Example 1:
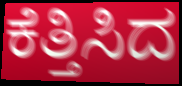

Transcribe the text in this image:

ಕೆತ್ತಿಸಿದ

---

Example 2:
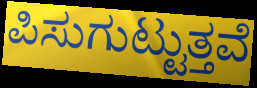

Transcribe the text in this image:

ಪಿಸುಗುಟ್ಟುತ್ತವೆ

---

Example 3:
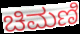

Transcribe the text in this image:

ಚಿಮಣಿ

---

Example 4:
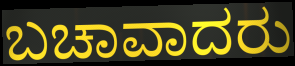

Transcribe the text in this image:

ಬಚಾವಾದರು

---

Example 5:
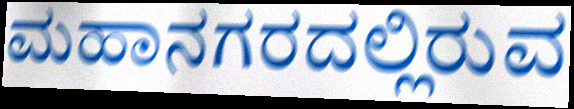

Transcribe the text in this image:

ಮಹಾನಗರದಲ್ಲಿರುವ